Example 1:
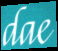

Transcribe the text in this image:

dae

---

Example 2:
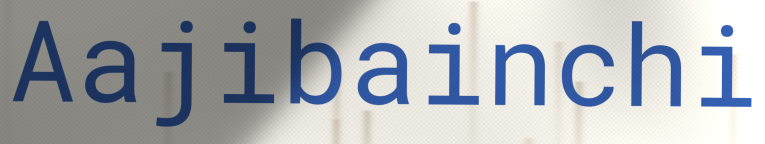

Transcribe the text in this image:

Aajibainchi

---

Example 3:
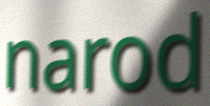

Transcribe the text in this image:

narod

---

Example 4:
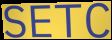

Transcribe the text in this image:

SETC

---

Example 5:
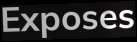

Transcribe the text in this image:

Exposes